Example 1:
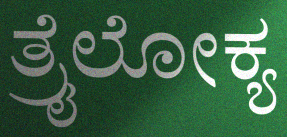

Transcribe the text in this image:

ತ್ರೈಲೋಕ್ಯ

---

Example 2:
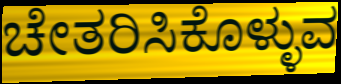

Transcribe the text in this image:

ಚೇತರಿಸಿಕೊಳ್ಳುವ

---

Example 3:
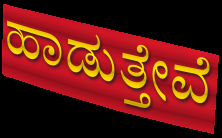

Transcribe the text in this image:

ಹಾಡುತ್ತೇವೆ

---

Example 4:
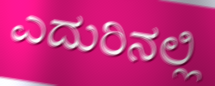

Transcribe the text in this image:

ಎದುರಿನಲ್ಲಿ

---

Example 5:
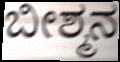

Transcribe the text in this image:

ಬೀಶ್ಮನ